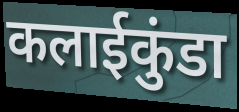
कलाईकुंडा